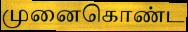
முனைகொண்ட